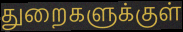
துறைகளுக்குள்